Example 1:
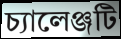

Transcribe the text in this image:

চ্যালেঞ্জটি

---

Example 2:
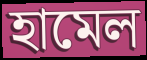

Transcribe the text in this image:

হামেল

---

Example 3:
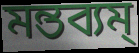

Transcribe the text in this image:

মন্তব্যম্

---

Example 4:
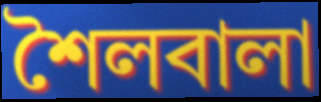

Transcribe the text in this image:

শৈলবালা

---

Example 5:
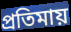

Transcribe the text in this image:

প্রতিমায়